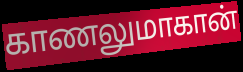
காணலுமாகான்